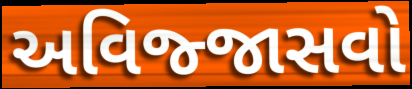
અવિજ્જાસવો